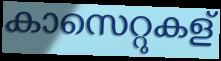
കാസെറ്റുകള്